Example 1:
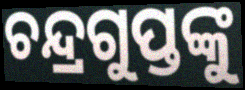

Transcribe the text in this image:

ଚନ୍ଦ୍ରଗୁପ୍ତଙ୍କୁ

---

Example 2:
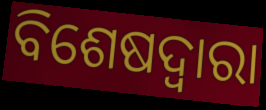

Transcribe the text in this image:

ବିଶେଷଦ୍ଵାରା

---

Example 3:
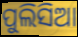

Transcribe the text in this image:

ପୁଲିସିଆ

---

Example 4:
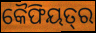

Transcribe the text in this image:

କୈଫିୟତ୍‌ର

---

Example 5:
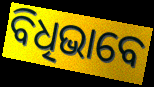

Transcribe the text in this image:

ବିଧିଭାବେ